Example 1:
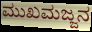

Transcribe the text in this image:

ಮುಖಮಜ್ಜನ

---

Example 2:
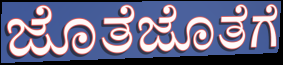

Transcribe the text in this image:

ಜೊತೆಜೊತೆಗೆ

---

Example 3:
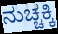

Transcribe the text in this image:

ನುಚ್ಚಕ್ಕಿ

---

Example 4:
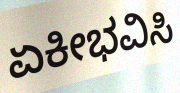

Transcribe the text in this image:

ಏಕೀಭವಿಸಿ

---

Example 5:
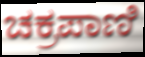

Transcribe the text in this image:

ಚಕ್ರಪಾಣಿ